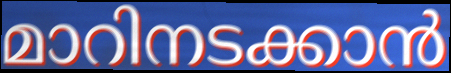
മാറിനടക്കാൻ